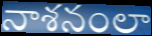
నాశనంలా